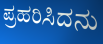
ಪ್ರಹರಿಸಿದನು